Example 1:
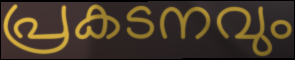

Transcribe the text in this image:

പ്രകടനവും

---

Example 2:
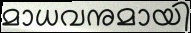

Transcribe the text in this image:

മാധവനുമായി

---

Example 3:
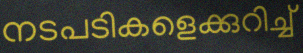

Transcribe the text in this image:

നടപടികളെക്കുറിച്ച്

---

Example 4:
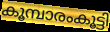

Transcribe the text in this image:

കൂമ്പാരംകൂട്ടി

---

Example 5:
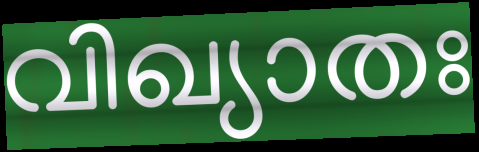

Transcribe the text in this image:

വിഖ്യാതഃ